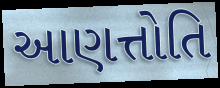
આણત્તોતિ